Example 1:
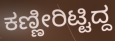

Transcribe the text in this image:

ಕಣ್ಣೀರಿಟ್ಟಿದ್ದ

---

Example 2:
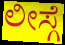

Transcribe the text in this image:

ಲೀಸ್ಗೆ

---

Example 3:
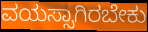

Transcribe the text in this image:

ವಯಸ್ಸಾಗಿರಬೇಕು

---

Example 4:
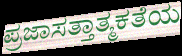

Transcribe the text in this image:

ಪ್ರಜಾಸತ್ತಾತ್ಮಕತೆಯ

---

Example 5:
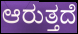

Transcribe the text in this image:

ಆರುತ್ತದೆ